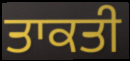
ਤਾਕਤੀ